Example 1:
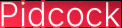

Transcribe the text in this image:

Pidcock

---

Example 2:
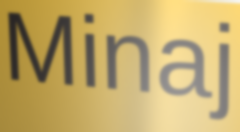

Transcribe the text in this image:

Minaj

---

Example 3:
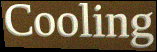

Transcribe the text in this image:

Cooling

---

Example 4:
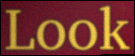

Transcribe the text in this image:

Look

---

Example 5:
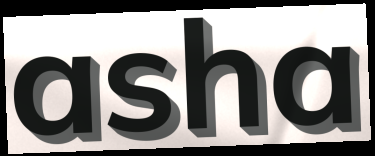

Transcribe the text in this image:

asha